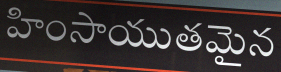
హింసాయుతమైన